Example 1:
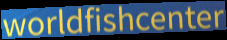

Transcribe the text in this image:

worldfishcenter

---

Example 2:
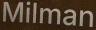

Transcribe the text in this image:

Milman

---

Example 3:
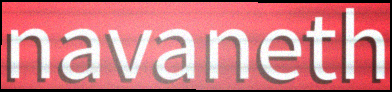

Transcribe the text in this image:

navaneth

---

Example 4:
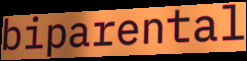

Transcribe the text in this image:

biparental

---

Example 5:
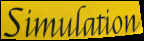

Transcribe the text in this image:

Simulation